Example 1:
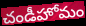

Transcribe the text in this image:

చండీహోమం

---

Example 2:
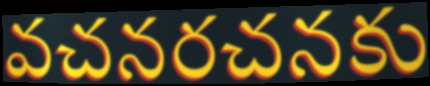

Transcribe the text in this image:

వచనరచనకు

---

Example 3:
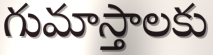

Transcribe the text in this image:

గుమాస్తాలకు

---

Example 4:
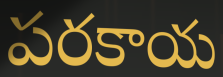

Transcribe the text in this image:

పరకాయ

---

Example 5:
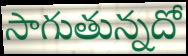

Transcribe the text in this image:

సాగుతున్నదో